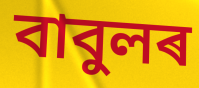
বাবুলৰ